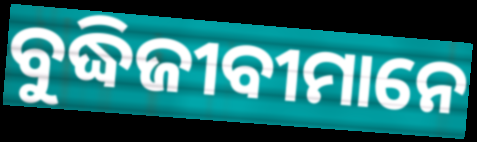
ବୁଦ୍ଧିଜୀବୀମାନେ